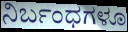
ನಿರ್ಬಂಧಗಳೂ